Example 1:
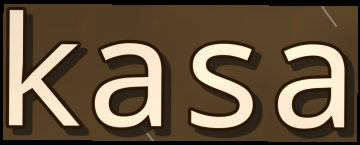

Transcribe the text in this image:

kasa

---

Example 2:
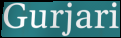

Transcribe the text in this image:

Gurjari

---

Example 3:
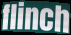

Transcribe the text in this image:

flinch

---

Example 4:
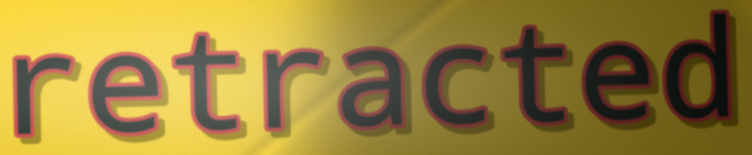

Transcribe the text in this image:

retracted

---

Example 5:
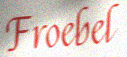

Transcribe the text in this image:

Froebel